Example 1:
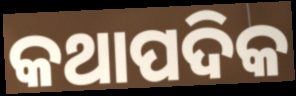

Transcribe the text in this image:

କଥାପଦିକ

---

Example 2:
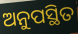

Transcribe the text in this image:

ଅନୁପସ୍ଥିତ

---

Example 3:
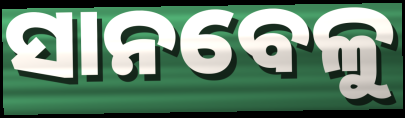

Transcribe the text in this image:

ସାନବେଳୁ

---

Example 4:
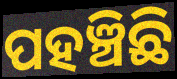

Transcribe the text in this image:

ପହଞ୍ଚିଛି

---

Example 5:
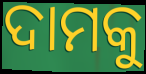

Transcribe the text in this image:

ଦାମକୁ